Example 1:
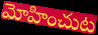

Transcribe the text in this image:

మోహించుట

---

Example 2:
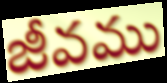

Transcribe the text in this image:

జీవము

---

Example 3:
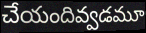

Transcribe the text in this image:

చేయందివ్వడమూ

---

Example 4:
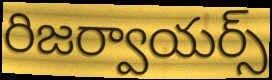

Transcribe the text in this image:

రిజర్వాయర్స్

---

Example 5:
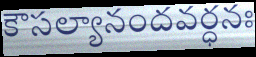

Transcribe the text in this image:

కౌసల్యానందవర్ధనః